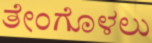
ತೇಂಗೊಳಲು